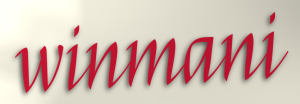
winmani